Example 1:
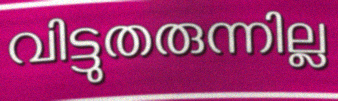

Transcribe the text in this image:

വിട്ടുതരുന്നില്ല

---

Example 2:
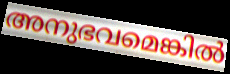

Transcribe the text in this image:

അനുഭവമെങ്കിൽ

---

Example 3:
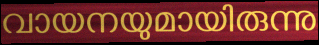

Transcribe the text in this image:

വായനയുമായിരുന്നു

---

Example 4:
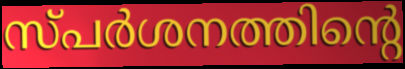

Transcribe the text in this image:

സ്പർശനത്തിന്റെ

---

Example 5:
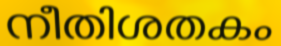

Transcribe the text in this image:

നീതിശതകം